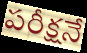
పరీక్షనే